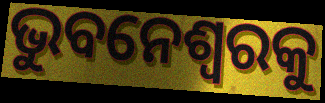
ଭୁବନେଶ୍ୱରକୁ